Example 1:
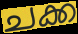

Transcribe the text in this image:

ചക്ക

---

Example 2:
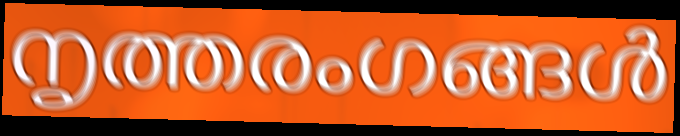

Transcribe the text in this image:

നൃത്തരംഗങ്ങൾ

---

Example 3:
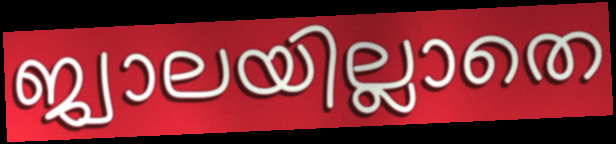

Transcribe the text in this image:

ജ്വാലയില്ലാതെ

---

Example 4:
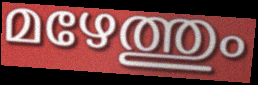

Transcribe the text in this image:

മഴേത്തും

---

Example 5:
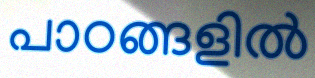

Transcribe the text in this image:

പാഠങ്ങളിൽ